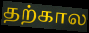
தற்கால